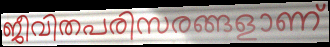
ജീവിതപരിസരങ്ങളാണ്